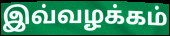
இவ்வழக்கம்